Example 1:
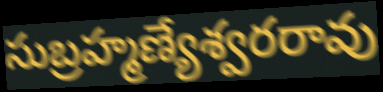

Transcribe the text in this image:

సుబ్రహ్మణ్యేశ్వరరావు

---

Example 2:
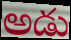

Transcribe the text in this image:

అడు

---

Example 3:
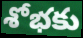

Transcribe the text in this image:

శోభకు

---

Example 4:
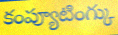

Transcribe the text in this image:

కంప్యూటింగ్కు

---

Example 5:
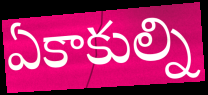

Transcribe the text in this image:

ఏకాకుల్ని